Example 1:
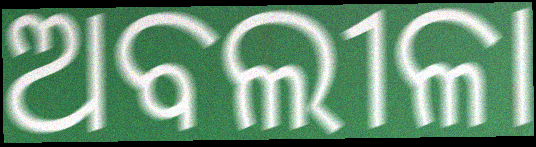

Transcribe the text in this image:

ଅବଲୀଳା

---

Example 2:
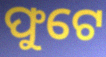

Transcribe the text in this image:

ଫୁଟେ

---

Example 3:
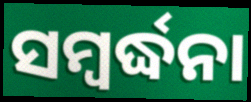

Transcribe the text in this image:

ସମ୍ୱର୍ଦ୍ଧନା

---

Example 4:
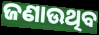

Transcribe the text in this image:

ଜଣାଉଥିବ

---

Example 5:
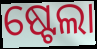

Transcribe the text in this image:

ଷ୍ଟେଲା